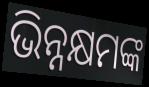
ଭିନ୍ନକ୍ଷମଙ୍କ